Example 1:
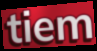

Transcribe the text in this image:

tiem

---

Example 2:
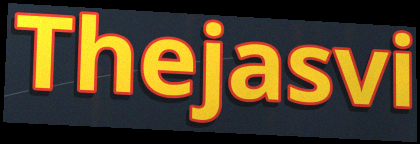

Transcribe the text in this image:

Thejasvi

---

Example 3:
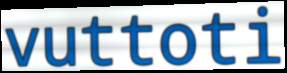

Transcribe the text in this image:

vuttoti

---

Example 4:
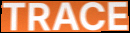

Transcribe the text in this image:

TRACE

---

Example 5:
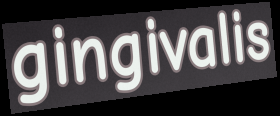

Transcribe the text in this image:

gingivalis